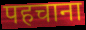
पहचाना